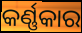
କର୍ଣ୍ଣକାର